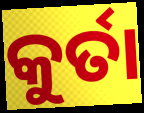
କୁର୍ତା